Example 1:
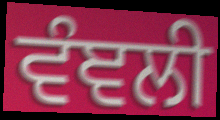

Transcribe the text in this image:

ਵੰਞਲੀ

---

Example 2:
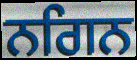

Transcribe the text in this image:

ਨਗਿਨ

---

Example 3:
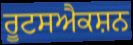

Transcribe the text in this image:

ਰੂਟਸਐਕਸ਼ਨ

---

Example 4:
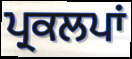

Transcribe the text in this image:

ਪ੍ਰਕਲਪਾਂ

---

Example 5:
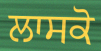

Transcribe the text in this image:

ਲਾਸਕੋ